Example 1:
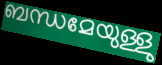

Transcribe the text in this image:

ബന്ധമേയുള്ളു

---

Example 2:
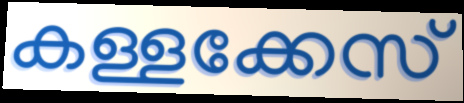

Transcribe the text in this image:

കള്ളക്കേസ്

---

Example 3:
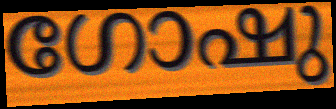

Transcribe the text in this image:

ഗോഷു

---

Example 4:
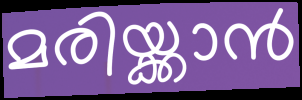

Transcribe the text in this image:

മരിയ്ക്കാൻ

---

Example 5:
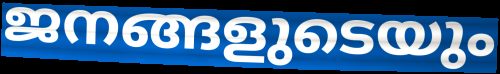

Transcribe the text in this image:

ജനങ്ങളുടെയും